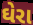
ઘેરા